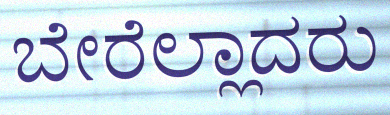
ಬೇರೆಲ್ಲಾದರು